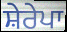
ਸ਼ੇਰੇਪਾ